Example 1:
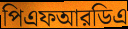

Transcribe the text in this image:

পিএফআরডিএ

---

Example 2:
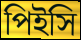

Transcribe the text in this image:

পিইসি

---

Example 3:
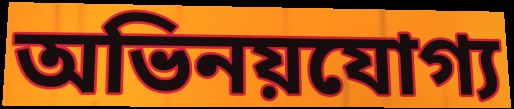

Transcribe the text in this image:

অভিনয়যোগ্য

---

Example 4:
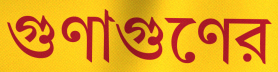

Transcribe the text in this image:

গুণাগুণের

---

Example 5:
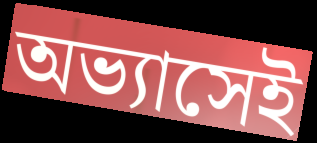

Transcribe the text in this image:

অভ্যাসেই